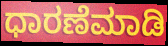
ಧಾರಣೆಮಾಡಿ